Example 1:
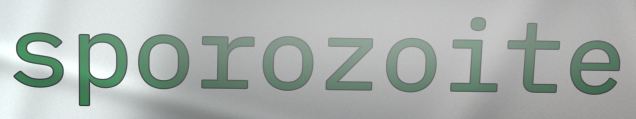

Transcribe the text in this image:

sporozoite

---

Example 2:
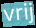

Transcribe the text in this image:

vrij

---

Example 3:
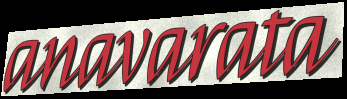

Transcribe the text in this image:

anavarata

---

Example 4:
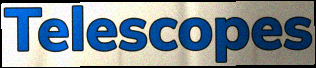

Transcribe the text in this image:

Telescopes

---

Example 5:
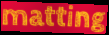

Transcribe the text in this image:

matting